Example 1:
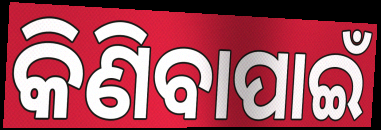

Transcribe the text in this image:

କିଣିବାପାଇଁ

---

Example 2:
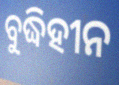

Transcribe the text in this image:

ବୁଦ୍ଧିହୀନ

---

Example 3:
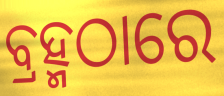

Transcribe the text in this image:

ବ୍ରହ୍ମଠାରେ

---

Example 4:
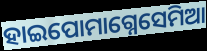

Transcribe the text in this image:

ହାଇପୋମାଗ୍ନେସେମିଆ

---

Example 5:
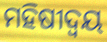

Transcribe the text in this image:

ମହିଷୀଦ୍ୱୟ